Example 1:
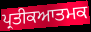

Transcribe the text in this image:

ਪ੍ਰਤੀਕਆਤਮਕ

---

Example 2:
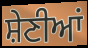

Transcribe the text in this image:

ਸ਼ੇਣੀਆਂ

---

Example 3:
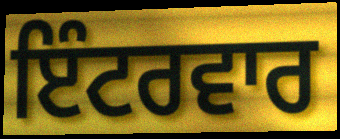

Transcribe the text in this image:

ਇੰਟਰਵਾਰ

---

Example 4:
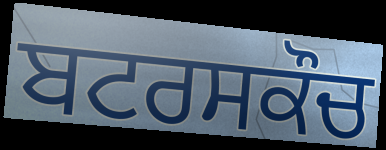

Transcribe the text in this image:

ਬਟਰਸਕੌਚ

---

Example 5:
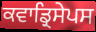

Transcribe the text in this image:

ਕਵਾਡ੍ਰਿਸੇਪਸ